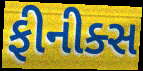
ફીનીક્સ